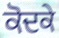
ਕੋਦਕੇ